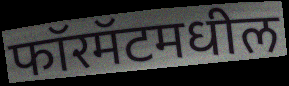
फॉरमॅटमधील